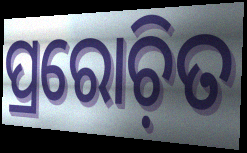
ପ୍ରରୋଚ଼ିତ